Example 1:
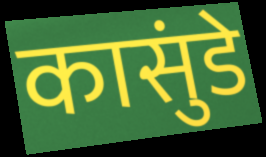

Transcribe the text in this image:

कासुंडे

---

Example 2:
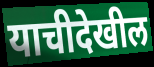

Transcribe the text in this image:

याचीदेखील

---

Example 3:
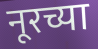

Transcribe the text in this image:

नूरच्या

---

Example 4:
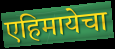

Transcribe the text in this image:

एहिमायेचा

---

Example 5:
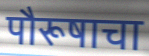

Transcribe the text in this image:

पौरूषाचा